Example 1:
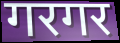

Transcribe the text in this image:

गरगर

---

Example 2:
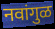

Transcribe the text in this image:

नवांगुळ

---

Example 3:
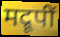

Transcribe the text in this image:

मद्रूपीं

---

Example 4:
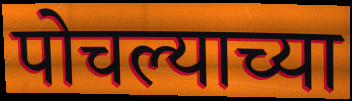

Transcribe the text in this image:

पोचल्याच्या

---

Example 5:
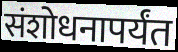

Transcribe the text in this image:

संशोधनापर्यंत